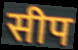
सीप